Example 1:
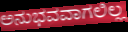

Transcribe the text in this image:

ಅನುಭವವಾಗಲಿಲ್ಲ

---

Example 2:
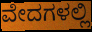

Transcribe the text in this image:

ವೇದಗಳಲ್ಲಿ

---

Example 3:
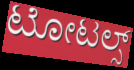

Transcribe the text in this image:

ಟೋಟಲ್ಸ್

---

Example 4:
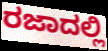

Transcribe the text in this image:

ರಜಾದಲ್ಲಿ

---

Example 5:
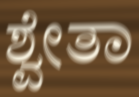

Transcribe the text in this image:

ಶ್ವೇತಾ